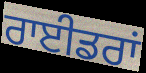
ਰਾਈਡਰਾਂ